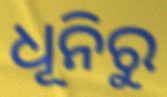
ଧୂନିରୁ